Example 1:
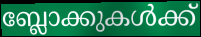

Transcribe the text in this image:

ബ്ലോക്കുകൾക്ക്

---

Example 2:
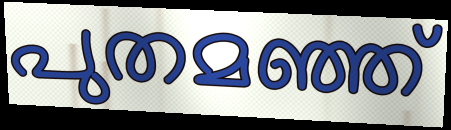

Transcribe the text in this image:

പുതമഞ്ഞ്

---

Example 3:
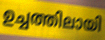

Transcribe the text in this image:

ഉച്ചത്തിലായി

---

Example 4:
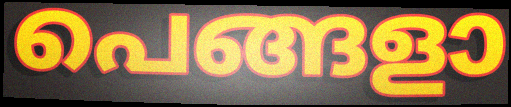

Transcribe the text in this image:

പെങ്ങളാ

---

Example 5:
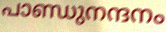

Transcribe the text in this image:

പാണ്ഡുനന്ദനം